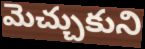
మెచ్చుకుని